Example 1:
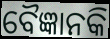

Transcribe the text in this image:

ବୈଜ୍ଞାନକି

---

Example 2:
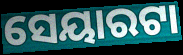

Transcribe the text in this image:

ସେୟାରଟା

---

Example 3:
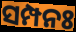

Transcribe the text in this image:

ସମ୍ପନଃ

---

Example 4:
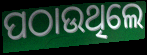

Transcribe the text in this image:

ପଠାଉଥିଲେ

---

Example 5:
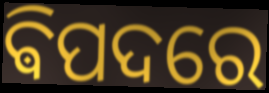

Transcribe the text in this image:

ଵିପଦରେ